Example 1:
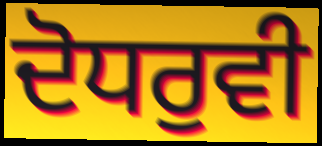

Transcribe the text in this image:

ਦੋਧਰੁਵੀ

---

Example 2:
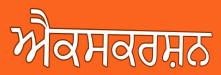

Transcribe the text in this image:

ਐਕਸਕਰਸ਼ਨ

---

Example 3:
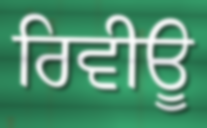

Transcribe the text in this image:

ਰਿਵੀਊ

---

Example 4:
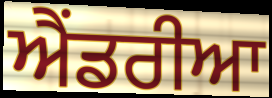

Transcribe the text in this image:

ਐਂਡਰੀਆ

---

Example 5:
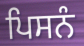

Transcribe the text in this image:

ਪਿਸਨੰ